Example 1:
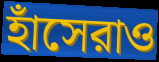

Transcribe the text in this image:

হাঁসেরাও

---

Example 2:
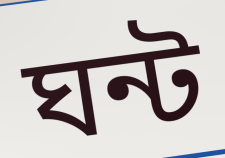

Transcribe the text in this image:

ঘন্ট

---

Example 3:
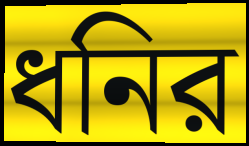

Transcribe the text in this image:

ধনির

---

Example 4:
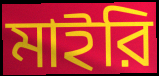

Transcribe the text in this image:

মাইরি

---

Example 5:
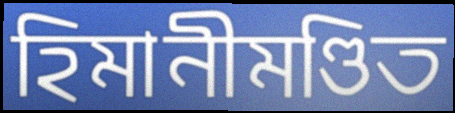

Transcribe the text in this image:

হিমানীমণ্ডিত